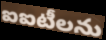
ఐఐటీలను